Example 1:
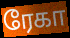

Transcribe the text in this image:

ரேகா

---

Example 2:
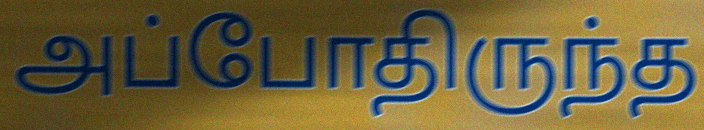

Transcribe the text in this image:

அப்போதிருந்த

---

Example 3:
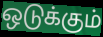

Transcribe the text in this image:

ஒடுக்கும்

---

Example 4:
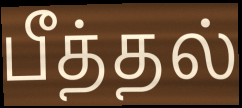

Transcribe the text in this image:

பீத்தல்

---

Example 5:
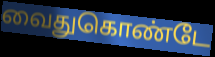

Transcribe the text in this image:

வைதுகொண்டே